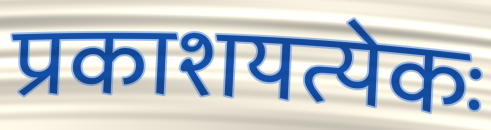
प्रकाशयत्येकः